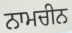
ਨਾਮਚੀਨ